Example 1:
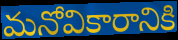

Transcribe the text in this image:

మనోవికారానికి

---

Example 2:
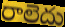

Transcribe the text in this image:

రాలెదు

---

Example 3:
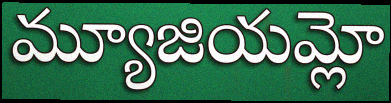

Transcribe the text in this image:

మ్యూజియమ్లో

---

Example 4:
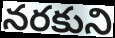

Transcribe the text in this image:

నరకుని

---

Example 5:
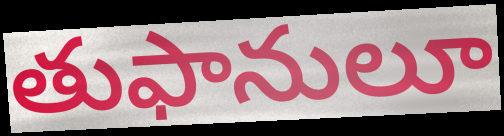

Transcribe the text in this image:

తుఫానులూ